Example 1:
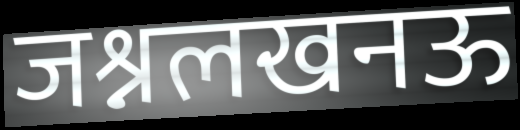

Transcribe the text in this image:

जश्नलखनऊ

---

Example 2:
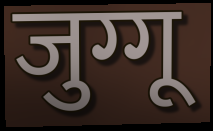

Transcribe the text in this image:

जुग्गू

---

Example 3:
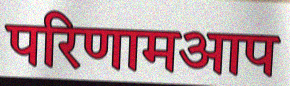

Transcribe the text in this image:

परिणामआप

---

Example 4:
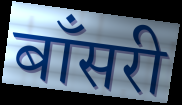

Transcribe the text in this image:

बाँसरी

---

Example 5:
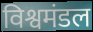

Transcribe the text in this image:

विश्वमंडल